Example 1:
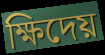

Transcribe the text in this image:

ক্ষিদেয়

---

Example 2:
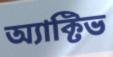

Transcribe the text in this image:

অ্যাক্টিভ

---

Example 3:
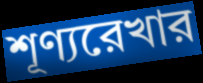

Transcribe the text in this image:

শূণ্যরেখার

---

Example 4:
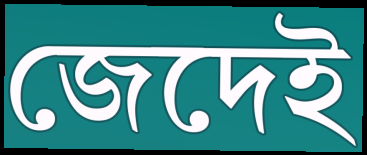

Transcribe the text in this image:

জেদেই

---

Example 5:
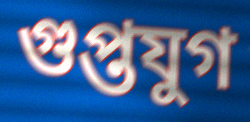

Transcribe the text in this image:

গুপ্তযুগ